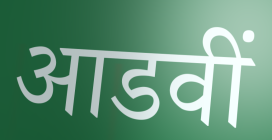
आडवीं